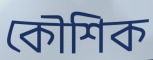
কৌশিক